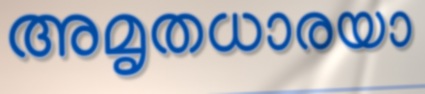
അമൃതധാരയാ